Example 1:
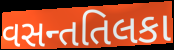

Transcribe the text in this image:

વસન્તતિલકા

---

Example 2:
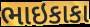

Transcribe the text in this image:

ભાઇકાકા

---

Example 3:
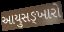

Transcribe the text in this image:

આયુસઙ્ખારો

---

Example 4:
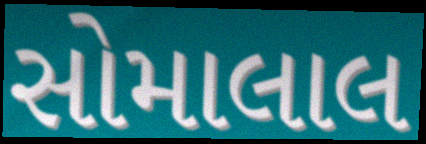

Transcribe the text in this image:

સોમાલાલ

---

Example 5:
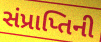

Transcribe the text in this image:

સંપ્રાપ્તિની